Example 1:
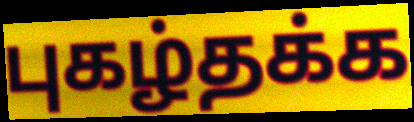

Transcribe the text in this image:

புகழ்தக்க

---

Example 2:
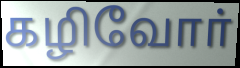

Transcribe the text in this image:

கழிவோர்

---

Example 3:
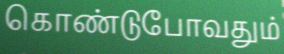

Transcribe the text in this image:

கொண்டுபோவதும்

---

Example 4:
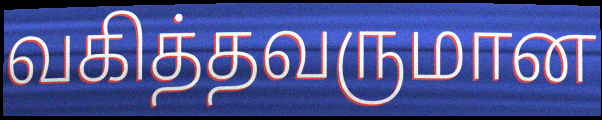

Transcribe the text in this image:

வகித்தவருமான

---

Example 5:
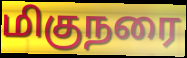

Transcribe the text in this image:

மிகுநரை